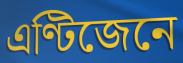
এণ্টিজেনে